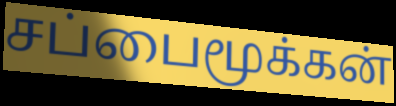
சப்பைமூக்கன்